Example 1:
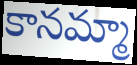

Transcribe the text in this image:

కానమ్మా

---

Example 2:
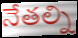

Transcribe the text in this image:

నేతల్ని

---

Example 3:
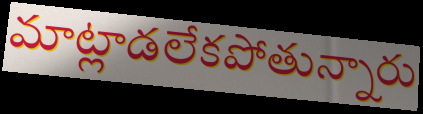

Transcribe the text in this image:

మాట్లాడలేకపోతున్నారు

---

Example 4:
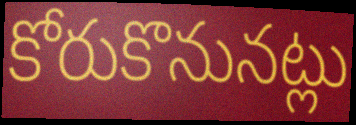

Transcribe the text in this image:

కోరుకొనునట్లు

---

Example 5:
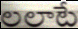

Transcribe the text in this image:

లలాటే